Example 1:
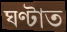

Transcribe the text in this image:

ঘণ্টাত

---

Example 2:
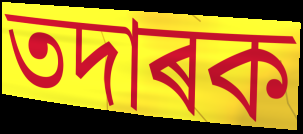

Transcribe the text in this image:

তদাৰক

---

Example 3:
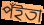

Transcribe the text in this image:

পঁইতা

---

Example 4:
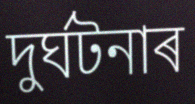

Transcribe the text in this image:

দুৰ্ঘটনাৰ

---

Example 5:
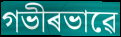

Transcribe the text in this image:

গভীৰভাৱে